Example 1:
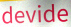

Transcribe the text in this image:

devide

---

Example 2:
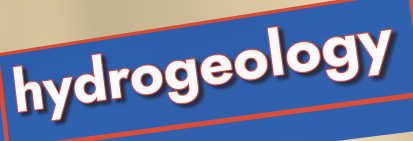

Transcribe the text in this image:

hydrogeology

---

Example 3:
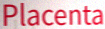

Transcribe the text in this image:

Placenta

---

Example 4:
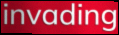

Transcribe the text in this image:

invading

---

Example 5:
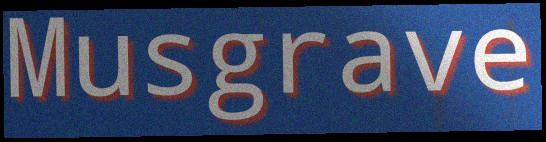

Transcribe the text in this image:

Musgrave